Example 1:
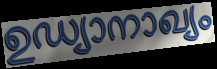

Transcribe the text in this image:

ഉഡ്യാനാഖ്യം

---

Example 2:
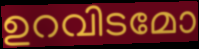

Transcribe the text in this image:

ഉറവിടമോ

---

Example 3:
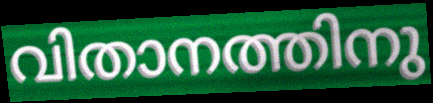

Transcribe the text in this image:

വിതാനത്തിനു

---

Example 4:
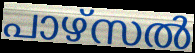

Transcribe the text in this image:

പാഴ്സൽ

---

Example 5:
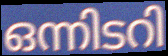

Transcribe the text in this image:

ഒന്നിടറി